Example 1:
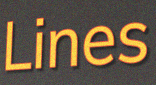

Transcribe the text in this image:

Lines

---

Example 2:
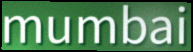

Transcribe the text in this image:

mumbai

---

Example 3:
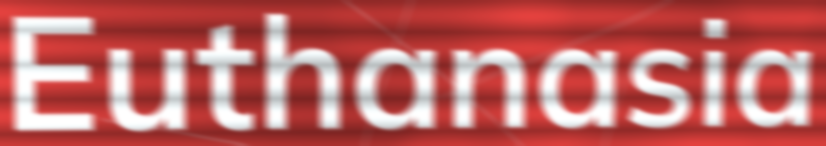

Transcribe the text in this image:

Euthanasia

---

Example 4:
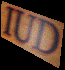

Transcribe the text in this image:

IUD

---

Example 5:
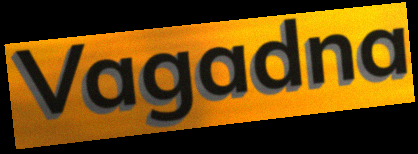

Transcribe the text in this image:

Vagadna